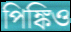
পিঙ্কিও